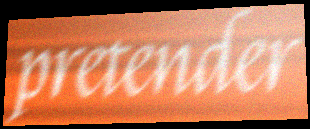
pretender